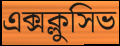
এক্সক্লুসিভ